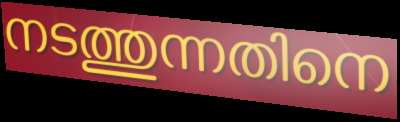
നടത്തുന്നതിനെ